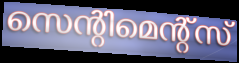
സെന്റിമെന്റ്സ്